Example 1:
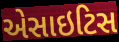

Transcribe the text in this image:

એસાઇટિસ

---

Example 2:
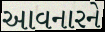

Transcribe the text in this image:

આવનારને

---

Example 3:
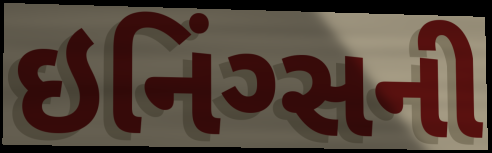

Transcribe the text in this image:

ઇનિંગ્સની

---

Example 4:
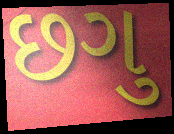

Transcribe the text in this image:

છગુ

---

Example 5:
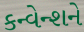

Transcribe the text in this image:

કન્વેન્શને